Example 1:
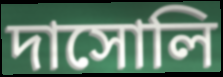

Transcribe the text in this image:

দাসোলি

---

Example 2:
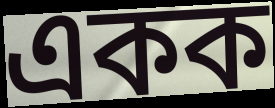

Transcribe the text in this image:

একক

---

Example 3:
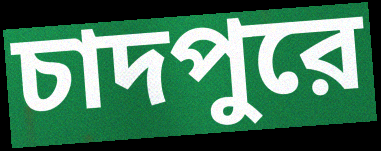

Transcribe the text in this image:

চাদপুরে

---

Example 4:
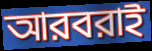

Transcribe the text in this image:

আরবরাই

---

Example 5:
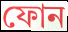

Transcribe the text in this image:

ফোন